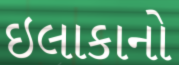
ઇલાકાનો